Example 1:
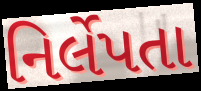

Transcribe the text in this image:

નિર્લેપતા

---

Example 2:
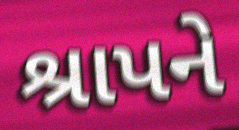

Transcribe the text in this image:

શ્રાપને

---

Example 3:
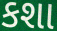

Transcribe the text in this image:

કશા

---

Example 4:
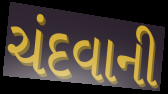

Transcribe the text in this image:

ચંદવાની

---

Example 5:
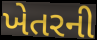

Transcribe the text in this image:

ખેતરની